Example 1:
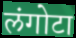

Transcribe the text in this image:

लंगोटा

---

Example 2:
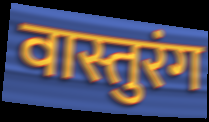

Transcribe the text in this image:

वास्तुरंग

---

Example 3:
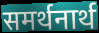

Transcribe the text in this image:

समर्थनार्थ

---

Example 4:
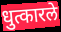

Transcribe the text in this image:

धुत्कारले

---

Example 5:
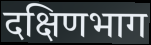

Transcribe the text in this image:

दक्षिणभाग